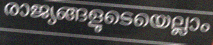
രാജ്യങ്ങളുടെയെല്ലാം